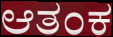
ಆತಂಕ